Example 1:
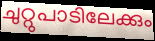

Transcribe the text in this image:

ചുറ്റുപാടിലേക്കും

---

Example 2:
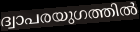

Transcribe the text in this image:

ദ്വാപരയുഗത്തിൽ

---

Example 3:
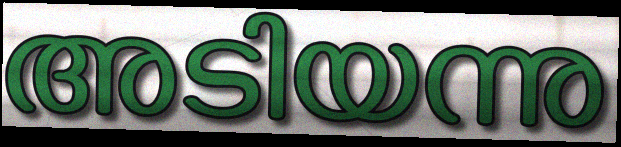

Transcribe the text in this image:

അടിയന്നു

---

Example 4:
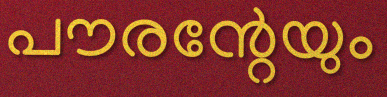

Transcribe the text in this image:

പൗരന്റേയും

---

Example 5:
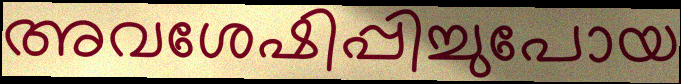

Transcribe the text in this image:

അവശേഷിപ്പിച്ചുപോയ